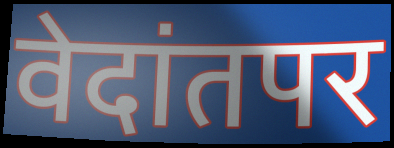
वेदांतपर